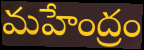
మహేంద్రం